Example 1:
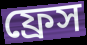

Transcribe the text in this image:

ফ্রেস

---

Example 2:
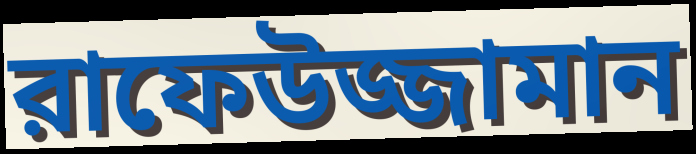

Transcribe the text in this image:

রাফেউজ্জামান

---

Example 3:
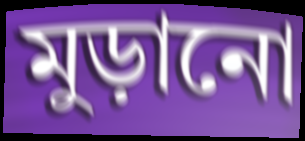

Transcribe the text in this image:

মুড়ানো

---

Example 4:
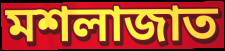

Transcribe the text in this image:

মশলাজাত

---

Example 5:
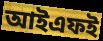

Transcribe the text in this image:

আইএফই